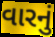
વારનું